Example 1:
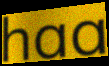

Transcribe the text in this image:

haa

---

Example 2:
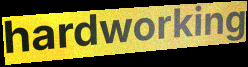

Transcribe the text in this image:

hardworking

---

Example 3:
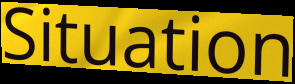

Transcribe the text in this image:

Situation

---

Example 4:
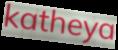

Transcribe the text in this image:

katheya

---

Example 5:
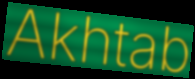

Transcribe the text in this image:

Akhtab